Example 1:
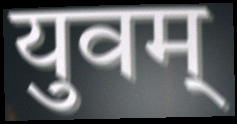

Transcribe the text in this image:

युवम्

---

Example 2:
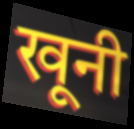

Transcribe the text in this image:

खूनी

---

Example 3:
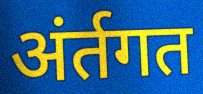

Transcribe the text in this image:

अंर्तगत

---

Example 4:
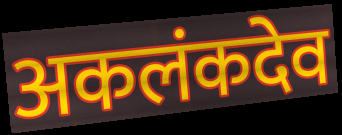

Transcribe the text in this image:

अकलंकदेव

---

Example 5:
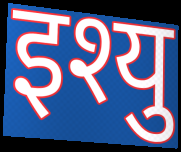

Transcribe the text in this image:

इश्यु